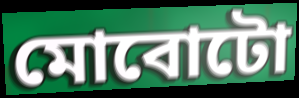
মোবোটো